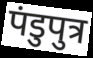
पंडुपुत्र